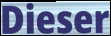
Dieser